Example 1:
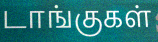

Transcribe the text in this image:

டாங்குகள்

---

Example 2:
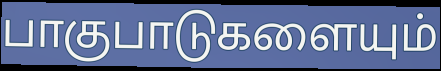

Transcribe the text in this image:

பாகுபாடுகளையும்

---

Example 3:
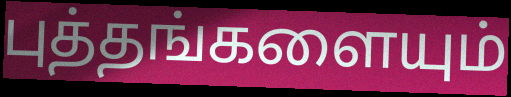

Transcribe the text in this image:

புத்தங்களையும்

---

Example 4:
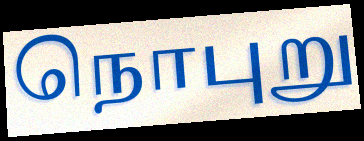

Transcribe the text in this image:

நொபுறு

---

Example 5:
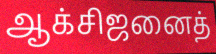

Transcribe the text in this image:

ஆக்சிஜனைத்